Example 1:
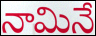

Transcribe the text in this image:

నామినే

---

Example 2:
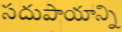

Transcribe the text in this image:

సదుపాయాన్ని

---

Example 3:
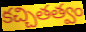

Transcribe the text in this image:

కచ్చితత్వం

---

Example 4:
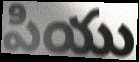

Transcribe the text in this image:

పియు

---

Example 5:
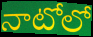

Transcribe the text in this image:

నాటోలో